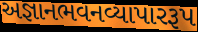
અજ્ઞાનભવનવ્યાપારરૂપ